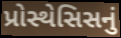
પ્રોસ્થેસિસનું